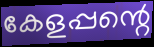
കേളപ്പന്റെ